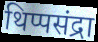
थिप्पसंद्रा